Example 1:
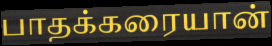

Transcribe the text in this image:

பாதக்கரையான்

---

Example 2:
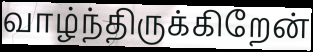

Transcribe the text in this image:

வாழ்ந்திருக்கிறேன்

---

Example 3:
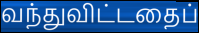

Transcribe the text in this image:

வந்துவிட்டதைப்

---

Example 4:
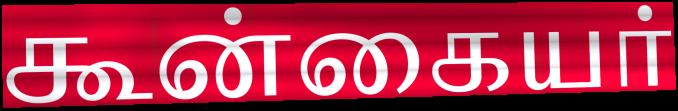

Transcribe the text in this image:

கூன்கையர்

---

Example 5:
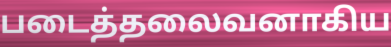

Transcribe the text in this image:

படைத்தலைவனாகிய